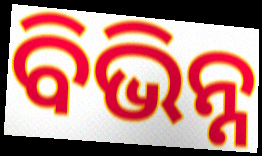
ବିଭିନ୍ନ